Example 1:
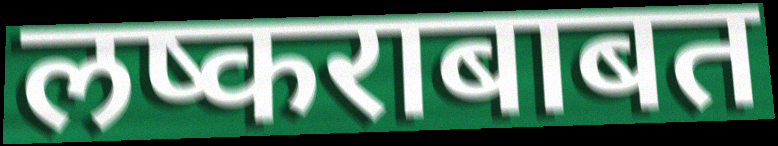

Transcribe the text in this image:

लष्कराबाबत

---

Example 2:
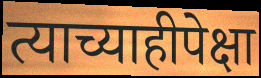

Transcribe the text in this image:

त्याच्याहीपेक्षा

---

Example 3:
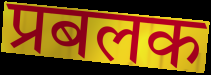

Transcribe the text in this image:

प्रबलक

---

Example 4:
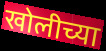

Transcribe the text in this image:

खोलीच्या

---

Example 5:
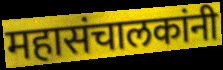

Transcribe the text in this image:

महासंचालकांनी